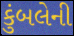
કુંબલેની